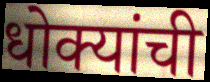
धोक्यांची